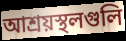
আশ্রয়স্থলগুলি